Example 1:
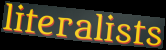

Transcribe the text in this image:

literalists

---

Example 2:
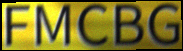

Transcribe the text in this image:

FMCBG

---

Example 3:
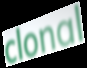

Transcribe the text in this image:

clonal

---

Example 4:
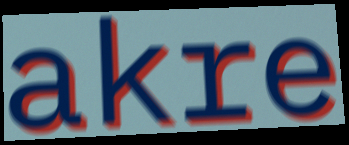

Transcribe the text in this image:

akre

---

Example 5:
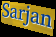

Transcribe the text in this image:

Sarjan